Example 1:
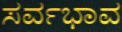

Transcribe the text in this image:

ಸರ್ವಭಾವ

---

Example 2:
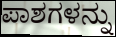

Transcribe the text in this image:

ಪಾಶಗಳನ್ನು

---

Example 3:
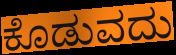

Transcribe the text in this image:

ಕೊಡುವದು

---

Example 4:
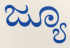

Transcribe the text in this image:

ಜ್ಯೂ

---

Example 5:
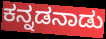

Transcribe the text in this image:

ಕನ್ನಡನಾಡು